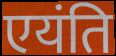
एयंति